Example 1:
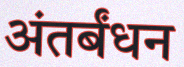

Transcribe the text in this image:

अंतर्बंधन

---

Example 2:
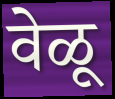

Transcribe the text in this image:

वेळू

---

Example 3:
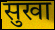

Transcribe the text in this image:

सुखा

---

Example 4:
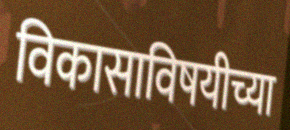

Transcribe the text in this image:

विकासाविषयीच्या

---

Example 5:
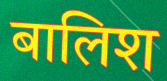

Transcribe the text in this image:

बालिश